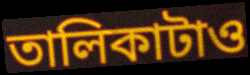
তালিকাটাও